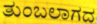
ತುಂಬಲಾಗದ